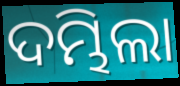
ଦମ୍ଭିଲା